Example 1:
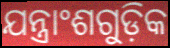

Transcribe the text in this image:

ଯନ୍ତ୍ରାଂଶଗୁଡ଼ିକ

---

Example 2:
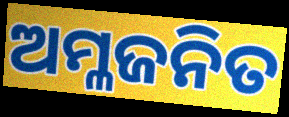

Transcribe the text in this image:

ଅମ୍ଳଜନିତ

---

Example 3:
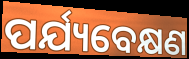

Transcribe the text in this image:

ପର୍ଯ୍ୟବେକ୍ଷଣ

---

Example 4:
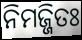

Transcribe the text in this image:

ନିମଜ୍ଜିତଃ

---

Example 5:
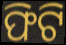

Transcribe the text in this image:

ଫିଟି